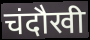
चंदौखी